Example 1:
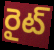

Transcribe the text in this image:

రైట్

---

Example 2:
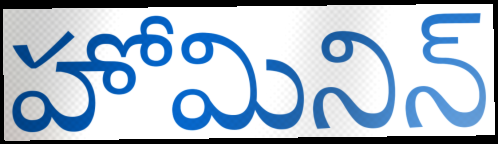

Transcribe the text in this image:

హోమినిన్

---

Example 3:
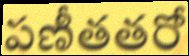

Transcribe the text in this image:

పణీతతరో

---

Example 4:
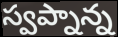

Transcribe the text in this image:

స్వప్నాన్న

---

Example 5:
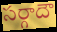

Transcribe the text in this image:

సర్గాదౌ